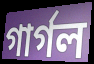
গার্গল